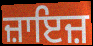
ਜ਼ਾਇਜ਼